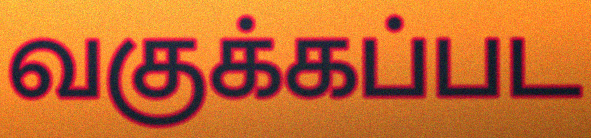
வகுக்கப்பட